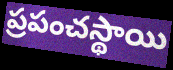
ప్రపంచస్థాయి